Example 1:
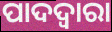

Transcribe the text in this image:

ପାଦଦ୍ଵାରା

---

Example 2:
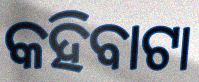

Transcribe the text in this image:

କହିବାଟା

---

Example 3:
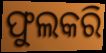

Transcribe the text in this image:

ଫୁଲକରି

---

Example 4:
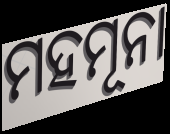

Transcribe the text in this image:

ମହମୂନା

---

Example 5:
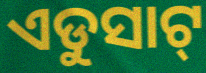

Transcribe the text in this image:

ଏଡୁସାଟ୍